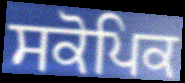
ਸਕੋਪਿਕ